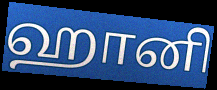
ஹானி